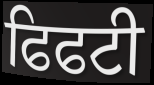
ਫਿਫਟੀ